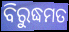
ବିରୁଦ୍ଧମତ